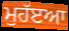
ਮੁਹੱੲਆ